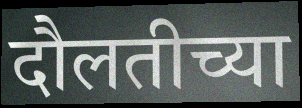
दौलतीच्या